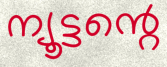
ന്യൂട്ടന്റെ